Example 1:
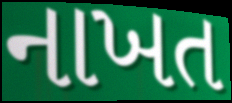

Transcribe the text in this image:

નાખત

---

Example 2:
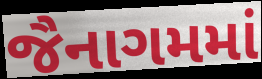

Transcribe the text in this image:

જૈનાગમમાં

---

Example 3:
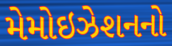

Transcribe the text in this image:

મેમોઇઝેશનનો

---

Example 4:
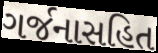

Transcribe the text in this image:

ગર્જનાસહિત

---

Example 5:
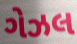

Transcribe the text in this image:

ગેઝલ